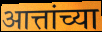
आत्तांच्या